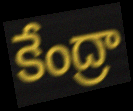
కేంద్రా